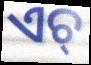
ଏଚ୍